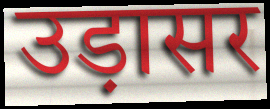
उड़ासर